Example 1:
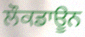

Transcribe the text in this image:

ਲੌਕਡਾਊਨ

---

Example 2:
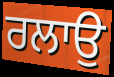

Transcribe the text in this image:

ਰਲਾਉ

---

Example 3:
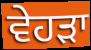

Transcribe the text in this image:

ਵੇਹੜਾ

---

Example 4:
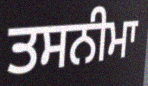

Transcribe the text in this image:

ਤਸਨੀਮਾ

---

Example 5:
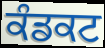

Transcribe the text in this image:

ਕੰਡਕਟ